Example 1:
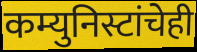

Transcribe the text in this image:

कम्युनिस्टांचेही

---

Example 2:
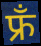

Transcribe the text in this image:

फ्रँ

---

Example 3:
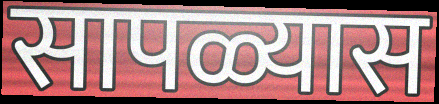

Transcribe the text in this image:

सापळ्यास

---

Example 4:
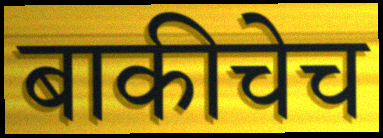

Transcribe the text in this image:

बाकीचेच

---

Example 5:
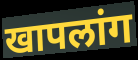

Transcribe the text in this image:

खापलांग